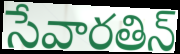
సేవారతిన్